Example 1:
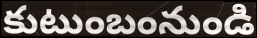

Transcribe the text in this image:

కుటుంబంనుండి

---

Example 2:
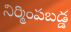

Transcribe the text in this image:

నిర్మింపబడ్డ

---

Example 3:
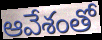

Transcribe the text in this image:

ఆవేశంతో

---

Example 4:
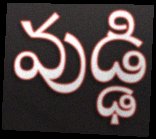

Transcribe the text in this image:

వుడ్ఢి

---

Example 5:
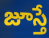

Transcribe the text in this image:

జూస్తే